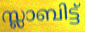
സ്ലാബിട്ട്